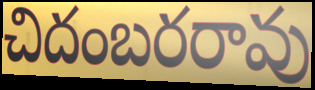
చిదంబరరావు